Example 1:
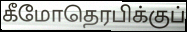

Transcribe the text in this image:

கீமோதெரபிக்குப்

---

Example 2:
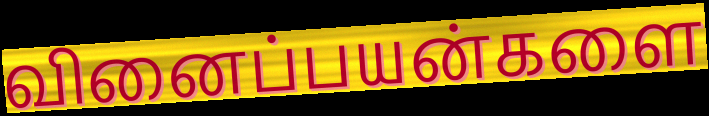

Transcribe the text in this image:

வினைப்பயன்களை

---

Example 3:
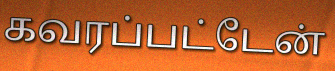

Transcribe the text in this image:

கவரப்பட்டேன்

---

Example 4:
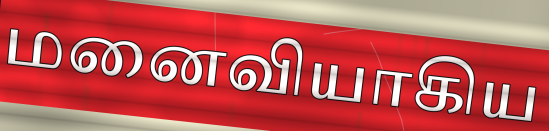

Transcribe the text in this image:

மனைவியாகிய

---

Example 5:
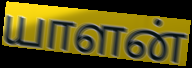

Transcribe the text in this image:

யாளன்